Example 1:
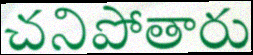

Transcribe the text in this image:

చనిపోతారు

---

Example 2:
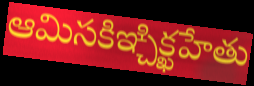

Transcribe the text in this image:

ఆమిసకిఞ్చిక్ఖహేతు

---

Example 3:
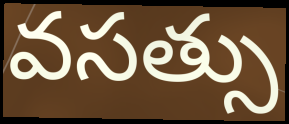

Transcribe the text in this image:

వసత్సు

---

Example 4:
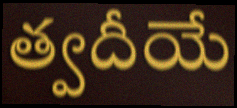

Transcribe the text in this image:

త్వదీయే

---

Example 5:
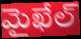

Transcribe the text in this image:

మైఖేల్